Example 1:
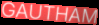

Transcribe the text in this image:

GAUTHAM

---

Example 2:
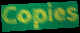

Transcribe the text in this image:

Copies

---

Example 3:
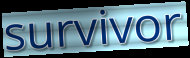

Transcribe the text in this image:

survivor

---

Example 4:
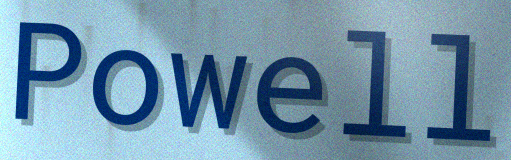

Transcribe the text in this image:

Powell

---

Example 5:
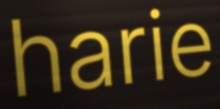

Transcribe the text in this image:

harie